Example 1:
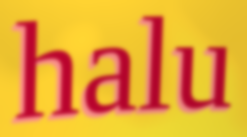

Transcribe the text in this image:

halu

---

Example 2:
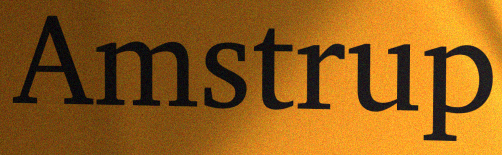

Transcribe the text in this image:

Amstrup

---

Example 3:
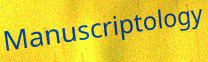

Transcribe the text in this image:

Manuscriptology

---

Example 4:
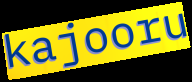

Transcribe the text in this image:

kajooru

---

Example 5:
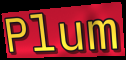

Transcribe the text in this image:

Plum